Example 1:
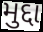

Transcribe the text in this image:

મુદ્દા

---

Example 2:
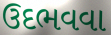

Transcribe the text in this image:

ઉદભવવા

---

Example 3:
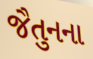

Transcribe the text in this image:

જૈતુનના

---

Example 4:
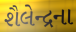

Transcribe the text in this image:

શૈલેન્દ્રના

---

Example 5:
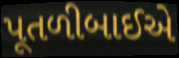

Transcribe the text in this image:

પૂતળીબાઈએ